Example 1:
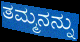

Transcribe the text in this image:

ತಮ್ಮನನ್ನು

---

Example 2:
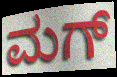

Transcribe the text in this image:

ಮಗ್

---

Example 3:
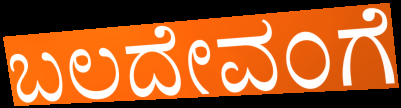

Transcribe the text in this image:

ಬಲದೇವಂಗೆ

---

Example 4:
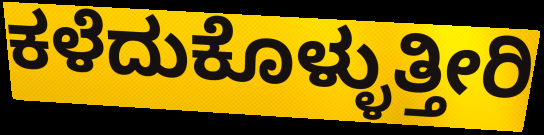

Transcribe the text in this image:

ಕಳೆದುಕೊಳ್ಳುತ್ತೀರಿ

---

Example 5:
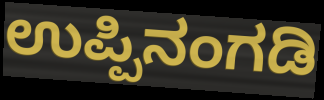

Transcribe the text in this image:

ಉಪ್ಪಿನಂಗಡಿ